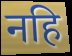
नहि